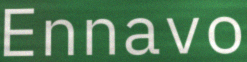
Ennavo